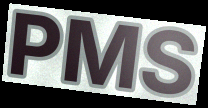
PMS